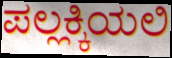
ಪಲ್ಲಕ್ಕಿಯಲಿ